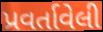
પ્રવર્તાવેલી